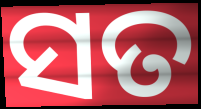
ସତ